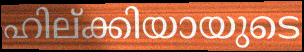
ഹില്ക്കിയായുടെ